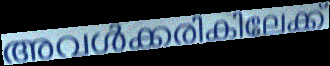
അവൾക്കരികിലേക്ക്